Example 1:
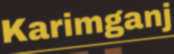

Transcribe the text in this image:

Karimganj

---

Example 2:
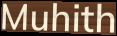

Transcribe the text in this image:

Muhith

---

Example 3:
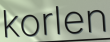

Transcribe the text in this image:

korlen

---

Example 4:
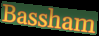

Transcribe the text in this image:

Bassham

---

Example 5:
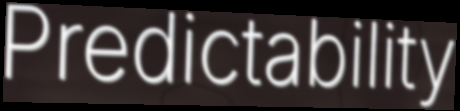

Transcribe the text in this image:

Predictability